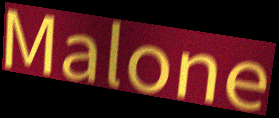
Malone